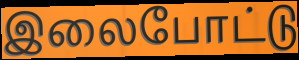
இலைபோட்டு